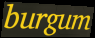
burgum